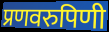
प्रणवरुपिणी